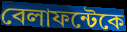
বেলাফন্টেকে